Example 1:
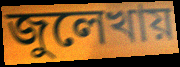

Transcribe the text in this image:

জুলেখায়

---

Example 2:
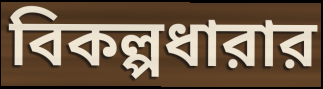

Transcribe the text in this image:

বিকল্পধারার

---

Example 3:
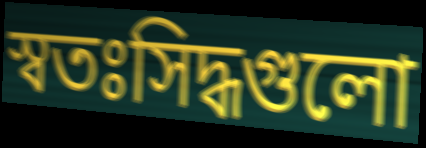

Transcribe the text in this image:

স্বতঃসিদ্ধগুলো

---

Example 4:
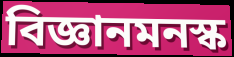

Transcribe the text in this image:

বিজ্ঞানমনস্ক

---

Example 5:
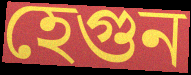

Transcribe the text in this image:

হেগুন